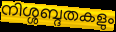
നിശ്ശബ്ദതകളും